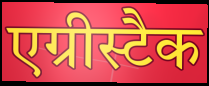
एग्रीस्टैक